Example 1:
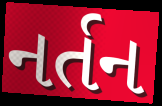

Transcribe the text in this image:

નર્તન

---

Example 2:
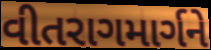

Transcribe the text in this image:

વીતરાગમાર્ગને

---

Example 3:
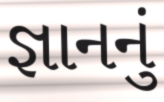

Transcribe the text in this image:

જ્ઞાનનું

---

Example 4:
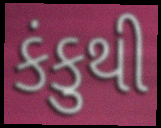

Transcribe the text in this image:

કંકુથી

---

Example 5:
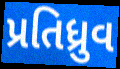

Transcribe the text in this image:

પ્રતિધ્રુવ